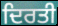
ਦਿਰਤੀ